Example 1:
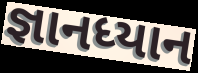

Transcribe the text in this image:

જ્ઞાનધ્યાન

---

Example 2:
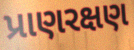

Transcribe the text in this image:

પ્રાણરક્ષણ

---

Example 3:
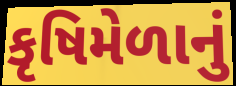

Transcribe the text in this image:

કૃષિમેળાનું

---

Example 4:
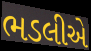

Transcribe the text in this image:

ભડલીએ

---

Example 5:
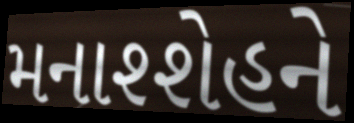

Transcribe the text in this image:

મનાશ્શેહને